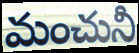
మంచునీ